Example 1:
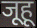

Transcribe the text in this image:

जूहू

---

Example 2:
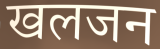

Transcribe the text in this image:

खलजन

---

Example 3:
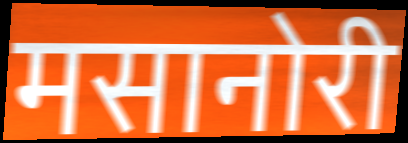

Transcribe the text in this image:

मसानोरी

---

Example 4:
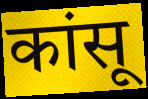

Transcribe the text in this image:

कांसू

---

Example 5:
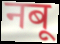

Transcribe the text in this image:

नबू